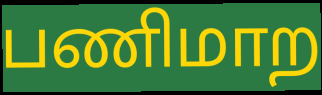
பணிமாற